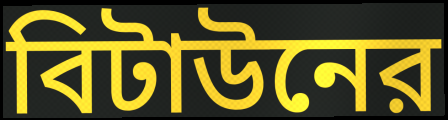
বিটাউনের